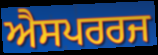
ਐਸਪਰਰਜ